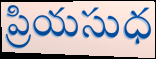
ప్రియసుధ